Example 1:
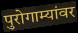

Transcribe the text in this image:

पुरोगाम्यांवर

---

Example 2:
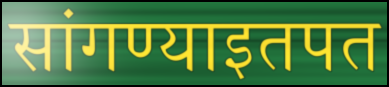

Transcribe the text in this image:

सांगण्याइतपत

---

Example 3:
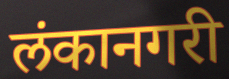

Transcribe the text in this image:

लंकानगरी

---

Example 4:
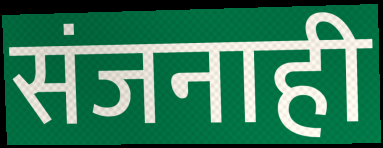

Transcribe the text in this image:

संजनाही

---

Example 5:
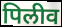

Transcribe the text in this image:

पिलीव